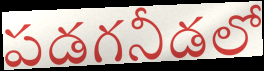
పడగనీడలో